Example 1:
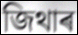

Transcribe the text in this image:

জিথাৰ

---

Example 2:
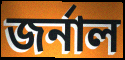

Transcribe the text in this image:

জৰ্নাল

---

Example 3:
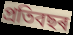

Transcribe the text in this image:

প্ৰতিবছৰ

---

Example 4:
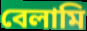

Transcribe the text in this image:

বেলামি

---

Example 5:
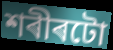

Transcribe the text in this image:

শৰীৰটো